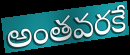
అంతవరకే